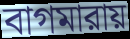
বাগমারায়